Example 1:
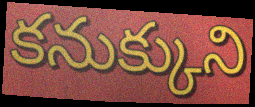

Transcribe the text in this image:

కనుక్కుని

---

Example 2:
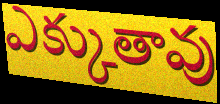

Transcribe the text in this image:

ఎక్కుతావు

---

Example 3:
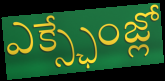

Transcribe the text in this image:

ఎక్స్ఛేంజ్లో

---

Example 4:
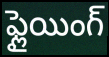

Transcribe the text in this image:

ఫ్లైయింగ్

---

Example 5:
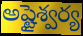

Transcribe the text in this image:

అష్టైశ్వర్య